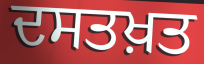
ਦਸਤਖ਼ਤ